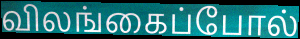
விலங்கைப்போல்